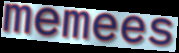
memees